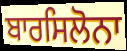
ਬਾਰਸਿਲੋਨਾ